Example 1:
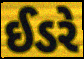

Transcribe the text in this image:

ઈડરે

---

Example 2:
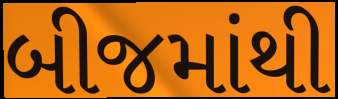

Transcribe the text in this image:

બીજમાંથી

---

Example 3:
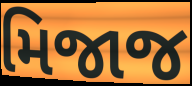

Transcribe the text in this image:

મિજાજ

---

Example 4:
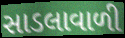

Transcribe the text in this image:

સાડલાવાળી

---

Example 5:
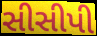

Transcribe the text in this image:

સીસીપી